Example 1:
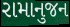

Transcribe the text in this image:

રામાનુજન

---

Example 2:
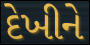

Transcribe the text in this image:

દેખીને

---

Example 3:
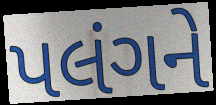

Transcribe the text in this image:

પલંગને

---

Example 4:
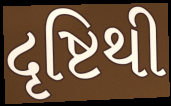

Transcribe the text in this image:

દૃષ્ટિથી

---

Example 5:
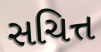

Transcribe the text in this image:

સચિત્ત